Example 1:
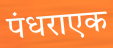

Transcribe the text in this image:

पंधराएक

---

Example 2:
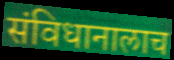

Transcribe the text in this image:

संविधानालाच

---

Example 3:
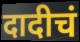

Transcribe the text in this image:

दादीचं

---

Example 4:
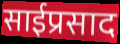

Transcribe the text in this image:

साईप्रसाद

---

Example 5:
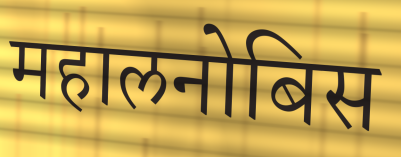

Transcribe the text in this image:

महालनोबिस